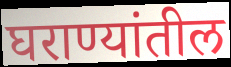
घराण्यांतील